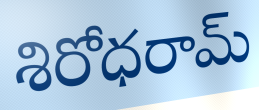
శిరోధరామ్